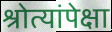
श्रोत्यांपेक्षा